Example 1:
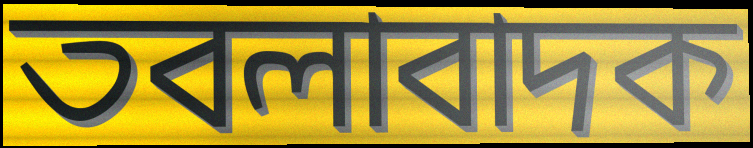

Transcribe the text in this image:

তবলাবাদক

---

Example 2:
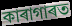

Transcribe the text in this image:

কাৰাগাৰত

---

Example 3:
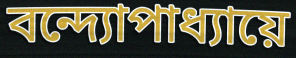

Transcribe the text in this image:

বন্দ্যোপাধ্যায়ে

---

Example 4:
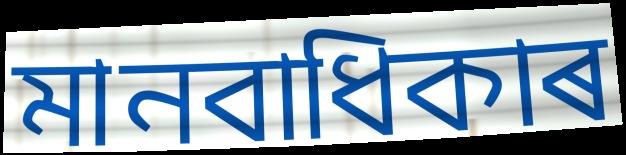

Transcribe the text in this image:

মানবাধিকাৰ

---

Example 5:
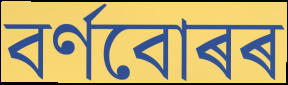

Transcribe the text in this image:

বৰ্ণবোৰৰ